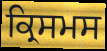
ਕ੍ਰਿਸਮਸ